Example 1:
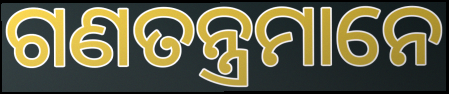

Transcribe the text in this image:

ଗଣତନ୍ତ୍ରମାନେ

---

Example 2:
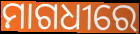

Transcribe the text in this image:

ମାଗଧୀରେ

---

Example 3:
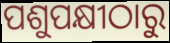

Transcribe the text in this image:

ପଶୁପକ୍ଷୀଠାରୁ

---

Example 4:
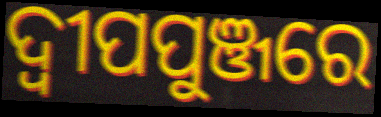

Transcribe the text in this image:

ଦ୍ୱୀପପୁଞ୍ଜରେ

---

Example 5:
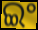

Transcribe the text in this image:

ଇଂ